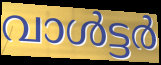
വാൾട്ടർ